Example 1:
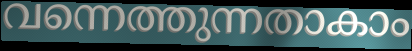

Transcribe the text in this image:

വന്നെത്തുന്നതാകാം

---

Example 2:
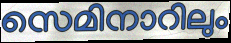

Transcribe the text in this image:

സെമിനാറിലും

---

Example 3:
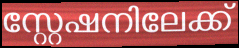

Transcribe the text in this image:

സ്റ്റേഷനിലേക്ക്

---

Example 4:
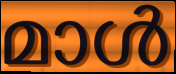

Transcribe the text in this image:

മാൾ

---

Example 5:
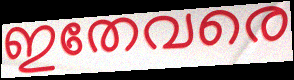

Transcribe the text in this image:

ഇതേവരെ